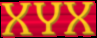
XYX